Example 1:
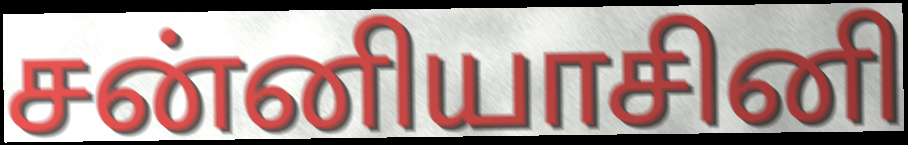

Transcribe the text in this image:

சன்னியாசினி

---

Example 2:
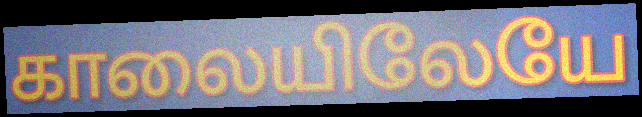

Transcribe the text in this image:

காலையிலேயே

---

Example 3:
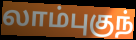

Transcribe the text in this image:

லாம்புகுந்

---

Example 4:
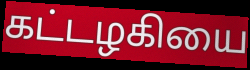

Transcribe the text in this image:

கட்டழகியை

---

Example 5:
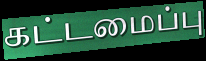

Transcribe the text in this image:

கட்டமைப்பு